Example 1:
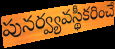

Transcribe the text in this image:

పునర్వ్యవస్థీకరించే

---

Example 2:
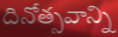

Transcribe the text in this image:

దినోత్సవాన్ని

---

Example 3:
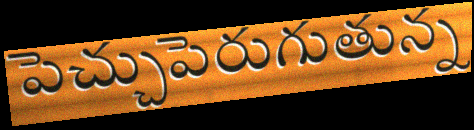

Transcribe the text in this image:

పెచ్చుపెరుగుతున్న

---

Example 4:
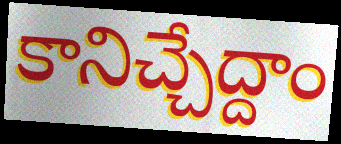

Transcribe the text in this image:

కానిచ్చేద్దాం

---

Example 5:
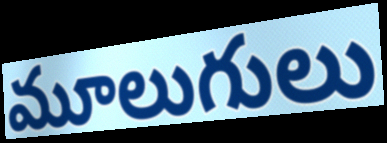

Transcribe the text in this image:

మూలుగులు